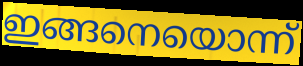
ഇങ്ങനെയൊന്ന്